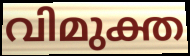
വിമുക്ത